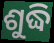
ଶୁଦ୍ଧି